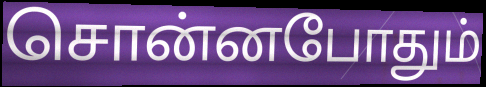
சொன்னபோதும்